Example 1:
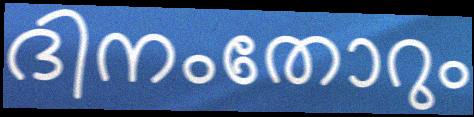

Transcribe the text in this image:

ദിനംതോറും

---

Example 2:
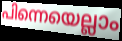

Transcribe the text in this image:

പിന്നെയെല്ലാം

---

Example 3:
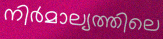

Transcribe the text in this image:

നിർമാല്യത്തിലെ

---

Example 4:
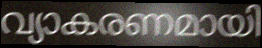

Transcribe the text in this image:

വ്യാകരണമായി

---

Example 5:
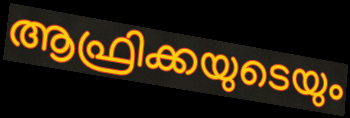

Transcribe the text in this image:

ആഫ്രിക്കയുടെയും